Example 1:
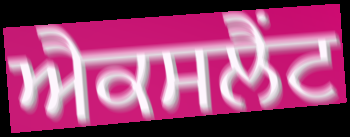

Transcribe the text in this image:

ਐਕਸਲੈਂਟ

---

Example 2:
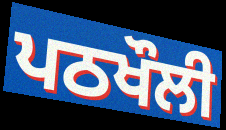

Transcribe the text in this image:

ਪਠਖੌਲੀ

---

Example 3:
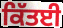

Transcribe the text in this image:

ਕਿੱਤਈ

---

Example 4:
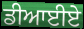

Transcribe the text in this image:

ਡੀਆਈਏ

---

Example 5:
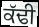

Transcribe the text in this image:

ਕੱਢੀ